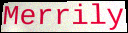
Merrily